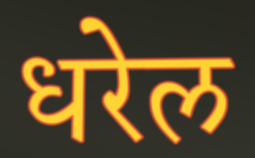
धरेल